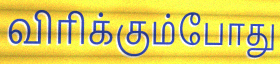
விரிக்கும்போது